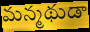
మన్మథుడా